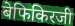
बेफिकिरजी